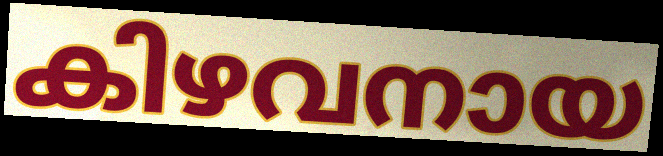
കിഴവനായ